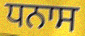
ਧਨਾਸ